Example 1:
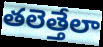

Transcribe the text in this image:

తలెత్తేలా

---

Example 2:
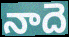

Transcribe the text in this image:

నాదె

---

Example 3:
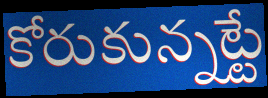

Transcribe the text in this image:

కోరుకున్నట్టే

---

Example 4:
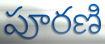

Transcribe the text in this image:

పూరణి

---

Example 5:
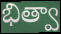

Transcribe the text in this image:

భిత్వా